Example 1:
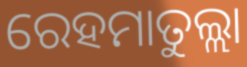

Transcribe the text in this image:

ରେହମାତୁଲ୍ଲା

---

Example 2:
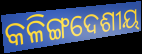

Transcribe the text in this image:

କଳିଙ୍ଗଦେଶୀୟ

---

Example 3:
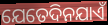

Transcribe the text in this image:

ଯେତେଦିନଯାଏଁ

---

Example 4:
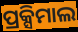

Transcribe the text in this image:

ପ୍ରକ୍ସିମାଲ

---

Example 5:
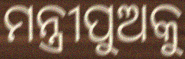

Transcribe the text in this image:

ମନ୍ତ୍ରୀପୁଅକୁ